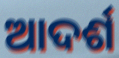
ଆଦର୍ଶ